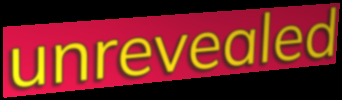
unrevealed